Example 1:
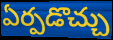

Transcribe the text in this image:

ఏర్పడొచ్చు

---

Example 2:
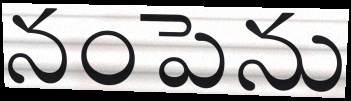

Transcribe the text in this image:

నంపెను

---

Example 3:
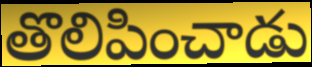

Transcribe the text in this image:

తొలిపించాడు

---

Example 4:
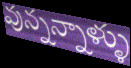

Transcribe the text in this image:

వున్నన్నాళ్ళు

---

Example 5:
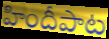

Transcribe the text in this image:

హిందీపాట